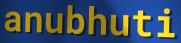
anubhuti